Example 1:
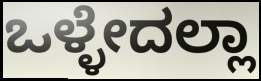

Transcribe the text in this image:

ಒಳ್ಳೇದಲ್ಲಾ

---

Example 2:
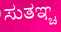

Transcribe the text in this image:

ಸುತಞ್ಚ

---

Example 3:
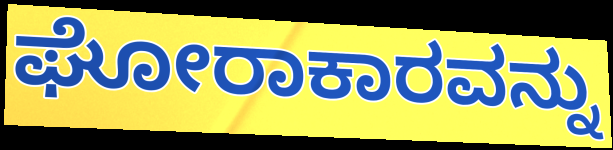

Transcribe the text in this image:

ಘೋರಾಕಾರವನ್ನು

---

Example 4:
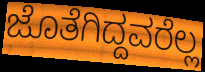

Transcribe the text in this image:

ಜೊತೆಗಿದ್ದವರೆಲ್ಲ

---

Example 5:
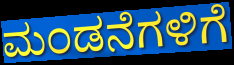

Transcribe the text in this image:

ಮಂಡನೆಗಳಿಗೆ